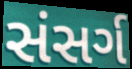
સંસર્ગ